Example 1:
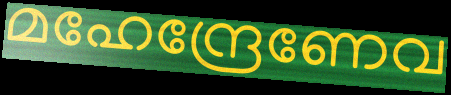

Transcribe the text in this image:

മഹേന്ദ്രേണേവ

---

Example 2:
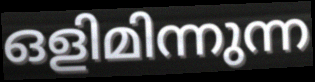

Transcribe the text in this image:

ഒളിമിന്നുന്ന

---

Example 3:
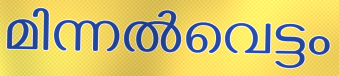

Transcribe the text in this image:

മിന്നൽവെട്ടം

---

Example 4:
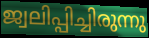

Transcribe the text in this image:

ജ്വലിപ്പിച്ചിരുന്നു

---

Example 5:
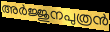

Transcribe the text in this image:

അർജ്ജുനപുത്രൻ